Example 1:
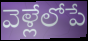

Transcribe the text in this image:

వెళ్లేలోపే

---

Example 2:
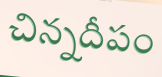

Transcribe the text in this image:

చిన్నదీపం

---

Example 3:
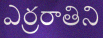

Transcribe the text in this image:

ఎర్రరాతిని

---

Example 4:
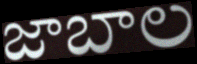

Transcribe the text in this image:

జాబాల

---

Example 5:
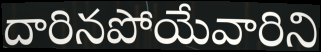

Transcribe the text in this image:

దారినపోయేవారిని